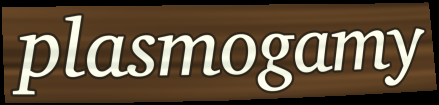
plasmogamy